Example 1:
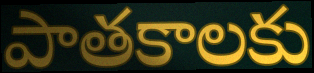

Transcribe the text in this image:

పాతకాలకు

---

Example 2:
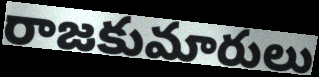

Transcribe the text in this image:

రాజకుమారులు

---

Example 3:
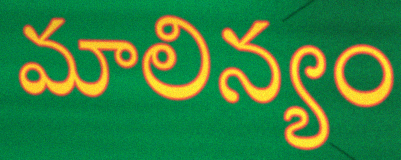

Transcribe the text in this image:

మాలిన్యం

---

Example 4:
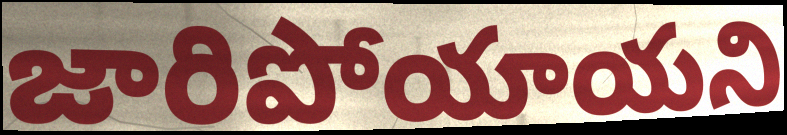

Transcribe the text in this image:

జారిపోయాయని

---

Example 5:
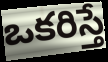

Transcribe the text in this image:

ఒకరిస్తే